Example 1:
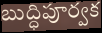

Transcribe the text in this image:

బుద్ధిపూర్వక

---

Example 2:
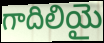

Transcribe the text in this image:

గాదిలియై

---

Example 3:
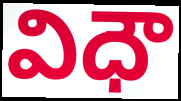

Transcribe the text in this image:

విధౌ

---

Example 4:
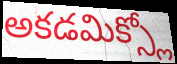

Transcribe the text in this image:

అకడమిక్స్లో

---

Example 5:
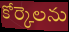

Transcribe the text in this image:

కోర్కెలను